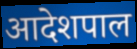
आदेशपाल